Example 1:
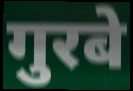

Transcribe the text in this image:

गुरबे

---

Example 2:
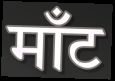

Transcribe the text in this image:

माँट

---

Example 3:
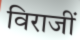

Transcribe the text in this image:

विराजीं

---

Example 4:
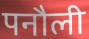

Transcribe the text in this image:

पनौली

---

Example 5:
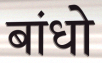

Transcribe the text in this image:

बांधो